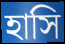
হাসি